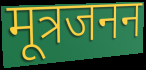
मूत्रजनन